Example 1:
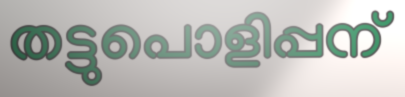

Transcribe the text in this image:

തട്ടുപൊളിപ്പന്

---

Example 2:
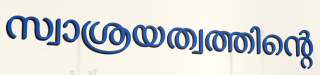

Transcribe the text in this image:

സ്വാശ്രയത്വത്തിന്റെ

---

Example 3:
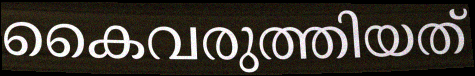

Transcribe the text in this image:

കൈവരുത്തിയത്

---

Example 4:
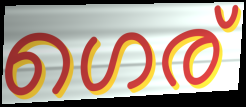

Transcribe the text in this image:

ഗെര്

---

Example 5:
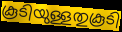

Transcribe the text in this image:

കൂടിയുള്ളതുകൂടി